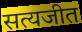
सत्यजीत